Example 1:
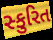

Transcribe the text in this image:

સ્કુરિત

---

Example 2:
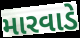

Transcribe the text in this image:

મારવાડે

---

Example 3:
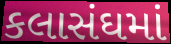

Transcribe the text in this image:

કલાસંઘમાં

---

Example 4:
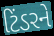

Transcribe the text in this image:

ટિંડરને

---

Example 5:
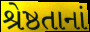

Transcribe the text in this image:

શ્રેષ્ઠતાનાં